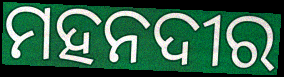
ମହନଦୀର